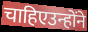
चाहिएउन्होंने